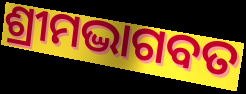
ଶ୍ରୀମଦ୍ଭାଗବତ